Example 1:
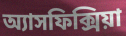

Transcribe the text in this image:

অ্যাসফিক্সিয়া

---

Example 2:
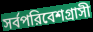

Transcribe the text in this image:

সর্বপরিবেশগ্রাসী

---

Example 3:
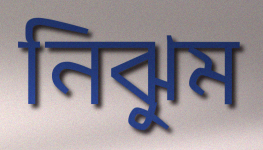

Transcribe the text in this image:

নিঝুম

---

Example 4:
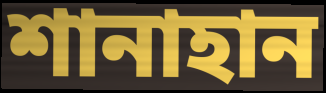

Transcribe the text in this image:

শানাহান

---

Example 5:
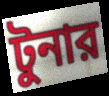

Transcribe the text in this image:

টুনার